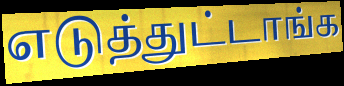
எடுத்துட்டாங்க